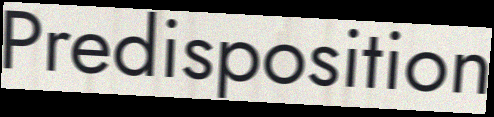
Predisposition